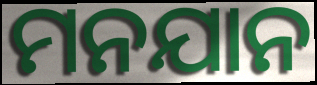
ମନଯାନ